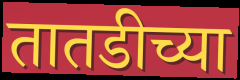
तातडीच्या